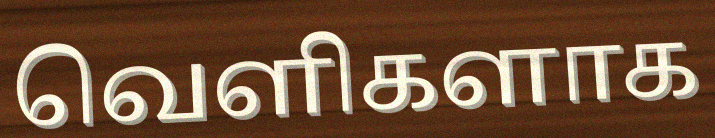
வெளிகளாக